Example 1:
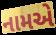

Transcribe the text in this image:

નામએ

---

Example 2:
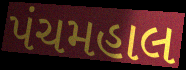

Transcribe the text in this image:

પંચમહાલ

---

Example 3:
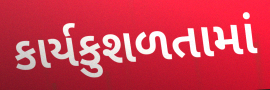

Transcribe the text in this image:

કાર્યકુશળતામાં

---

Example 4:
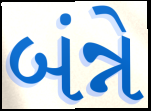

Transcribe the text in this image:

બંન્ને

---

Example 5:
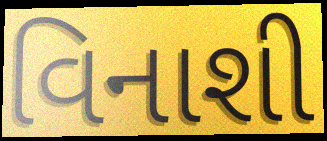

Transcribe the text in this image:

વિનાશી